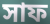
সাফ